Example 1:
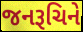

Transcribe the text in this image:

જનરૂચિને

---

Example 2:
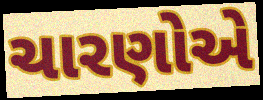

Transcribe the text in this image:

ચારણોએ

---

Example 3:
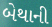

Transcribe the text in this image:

બેથાની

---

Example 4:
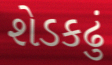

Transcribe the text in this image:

શેડકઢું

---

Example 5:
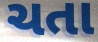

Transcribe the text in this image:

ચતા